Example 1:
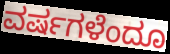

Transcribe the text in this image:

ವರ್ಷಗಳೆಂದೂ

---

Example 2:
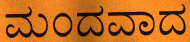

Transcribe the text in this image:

ಮಂದವಾದ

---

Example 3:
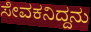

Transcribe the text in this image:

ಸೇವಕನಿದ್ದನು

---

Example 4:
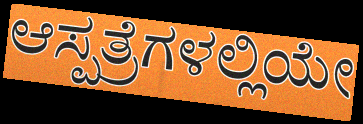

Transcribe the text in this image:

ಆಸ್ಪತ್ರೆಗಳಲ್ಲಿಯೇ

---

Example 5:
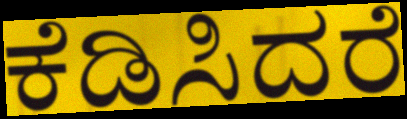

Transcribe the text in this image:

ಕೆಡಿಸಿದರೆ